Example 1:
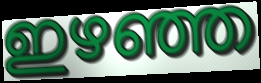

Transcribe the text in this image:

ഇഴഞ്ഞ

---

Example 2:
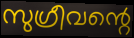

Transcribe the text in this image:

സുഗ്രീവന്റെ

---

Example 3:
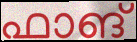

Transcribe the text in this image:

ഫാങ്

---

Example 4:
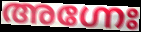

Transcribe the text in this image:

അഗ്നേഃ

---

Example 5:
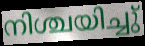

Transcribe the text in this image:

നിശ്ചയിച്ചു്